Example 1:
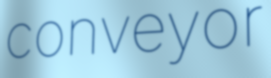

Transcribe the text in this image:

conveyor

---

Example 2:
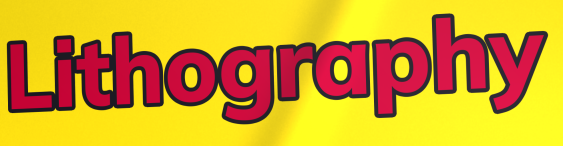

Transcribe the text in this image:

Lithography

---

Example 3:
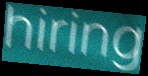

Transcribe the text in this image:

hiring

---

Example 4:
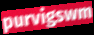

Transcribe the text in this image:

purvigswm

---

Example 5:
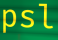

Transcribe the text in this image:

psl